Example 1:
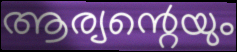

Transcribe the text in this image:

ആര്യന്റെയും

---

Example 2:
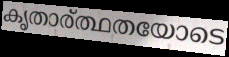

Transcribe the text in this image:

കൃതാര്ത്ഥതയോടെ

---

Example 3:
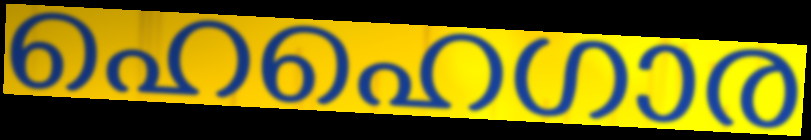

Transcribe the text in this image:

ഹെഹെഗാര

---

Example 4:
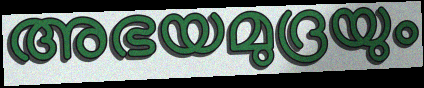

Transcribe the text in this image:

അഭയമുദ്രയും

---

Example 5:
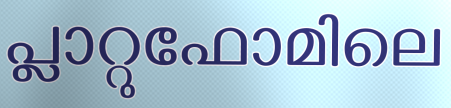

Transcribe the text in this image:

പ്ലാറ്റുഫോമിലെ